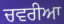
ਚਵਰੀਆ